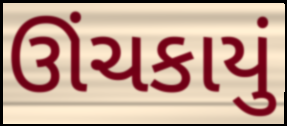
ઊંચકાયું